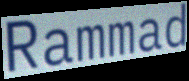
Rammad